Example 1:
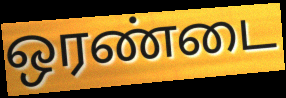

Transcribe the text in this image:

ஒரண்டை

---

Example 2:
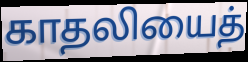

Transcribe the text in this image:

காதலியைத்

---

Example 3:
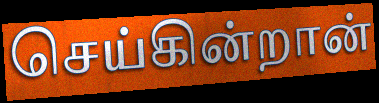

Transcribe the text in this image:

செய்கின்றான்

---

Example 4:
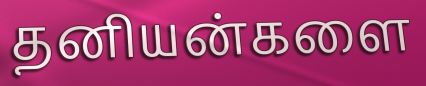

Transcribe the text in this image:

தனியன்களை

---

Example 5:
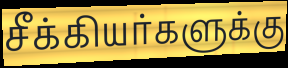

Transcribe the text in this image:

சீக்கியர்களுக்கு